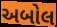
અબોલ